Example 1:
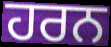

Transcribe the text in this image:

ਹਰਨ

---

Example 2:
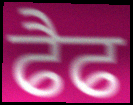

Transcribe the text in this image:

ਫੈਫ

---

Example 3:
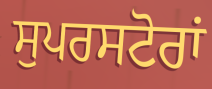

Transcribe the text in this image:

ਸੁਪਰਸਟੋਰਾਂ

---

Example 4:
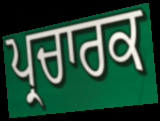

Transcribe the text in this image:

ਪ੍ਰਚਾਰਕ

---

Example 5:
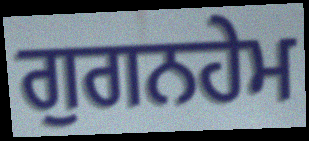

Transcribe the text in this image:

ਗੁਗਨਹੇਮ